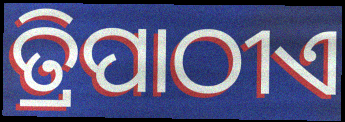
ତ୍ରିପାଠୀଏ